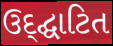
ઉદ્દ્ઘાટિત